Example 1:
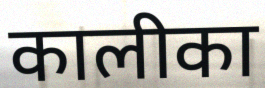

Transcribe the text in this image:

कालीका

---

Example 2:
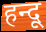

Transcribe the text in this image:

हन्दू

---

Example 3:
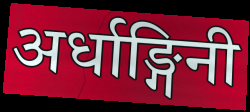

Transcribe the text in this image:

अर्धाङ्गिनी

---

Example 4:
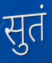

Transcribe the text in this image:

सुतं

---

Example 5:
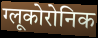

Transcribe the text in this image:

ग्लूकोरोनिक